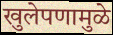
खुलेपणामुळे